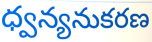
ధ్వన్యనుకరణ